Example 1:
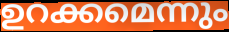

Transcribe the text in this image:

ഉറക്കമെന്നും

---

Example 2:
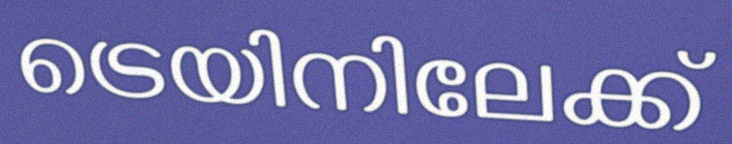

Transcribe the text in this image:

ട്രെയിനിലേക്ക്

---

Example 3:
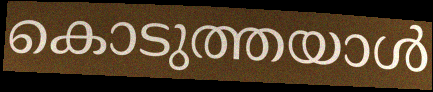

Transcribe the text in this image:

കൊടുത്തയാൾ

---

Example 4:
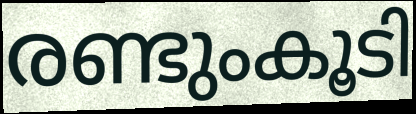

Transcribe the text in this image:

രണ്ടുംകൂടി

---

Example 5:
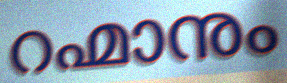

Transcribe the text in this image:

റഹ്മാനും